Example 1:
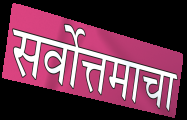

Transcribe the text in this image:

सर्वोत्तमाचा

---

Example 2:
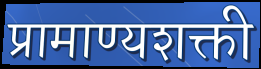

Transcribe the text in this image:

प्रामाण्यशक्ती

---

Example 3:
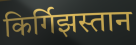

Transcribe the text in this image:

किर्गिझस्तान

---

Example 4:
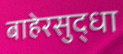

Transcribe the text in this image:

बाहेरसुद्धा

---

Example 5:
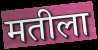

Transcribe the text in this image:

मतीला